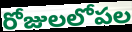
రోజులలోపల